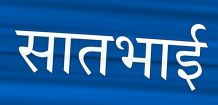
सातभाई